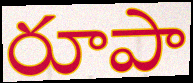
రూపా